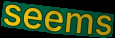
seems